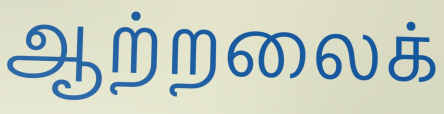
ஆற்றலைக்